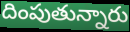
దింపుతున్నారు